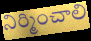
నిర్మించాలి